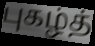
புகழ்த்